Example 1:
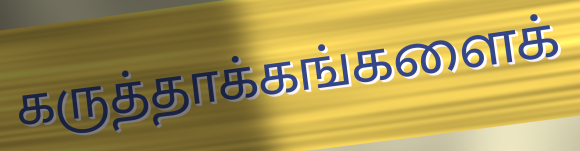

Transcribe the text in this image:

கருத்தாக்கங்களைக்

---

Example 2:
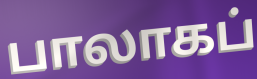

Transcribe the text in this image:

பாலாகப்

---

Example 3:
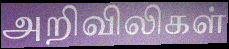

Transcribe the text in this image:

அறிவிலிகள்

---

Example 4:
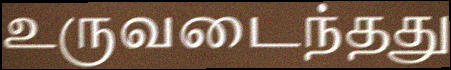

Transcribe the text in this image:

உருவடைந்தது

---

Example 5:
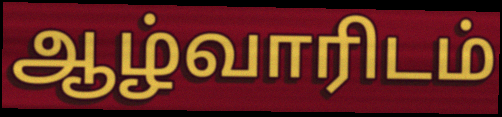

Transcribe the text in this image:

ஆழ்வாரிடம்